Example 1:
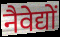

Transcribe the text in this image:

नैवेद्यों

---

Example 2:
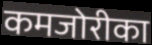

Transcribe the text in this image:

कमजोरीका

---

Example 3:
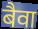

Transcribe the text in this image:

बैवा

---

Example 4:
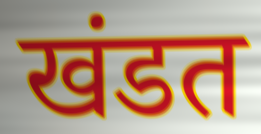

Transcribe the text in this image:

खंडत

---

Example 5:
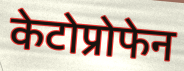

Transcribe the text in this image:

केटोप्रोफेन